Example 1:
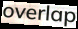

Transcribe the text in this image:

overlap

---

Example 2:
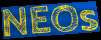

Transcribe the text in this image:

NEOs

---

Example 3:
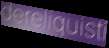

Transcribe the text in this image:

dereliquisti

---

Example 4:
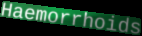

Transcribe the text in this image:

Haemorrhoids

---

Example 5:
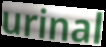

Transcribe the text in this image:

urinal